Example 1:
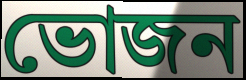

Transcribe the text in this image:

ভোজন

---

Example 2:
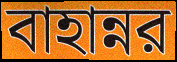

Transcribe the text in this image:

বাহান্নর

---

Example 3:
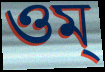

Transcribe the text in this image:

ওম্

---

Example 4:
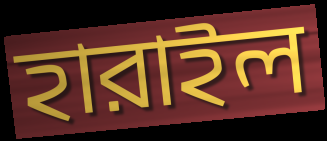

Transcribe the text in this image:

হারাইল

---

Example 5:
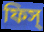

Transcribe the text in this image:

ফিস্